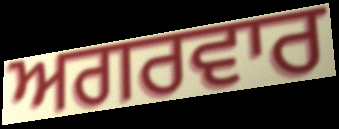
ਅਗਰਵਾਰ